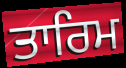
ਤਾਰਿਮ